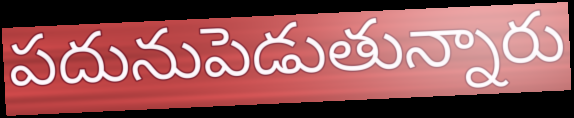
పదునుపెడుతున్నారు